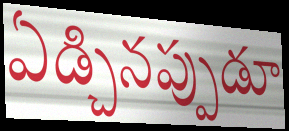
ఏడ్చినప్పుడూ